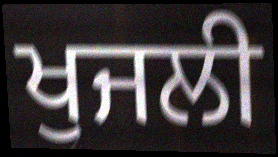
ਖੁਜਲੀ